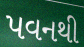
પવનથી